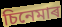
চিনেমাৰ